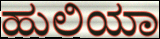
ಹುಲಿಯಾ